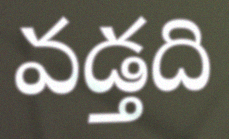
వడ్తది